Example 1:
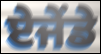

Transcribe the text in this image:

ਏਜੇਂਡੇ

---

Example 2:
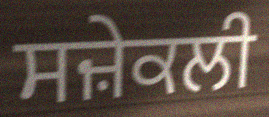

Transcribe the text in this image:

ਸਜ਼ੇਕਲੀ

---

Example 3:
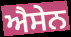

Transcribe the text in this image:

ਐਸੇਨ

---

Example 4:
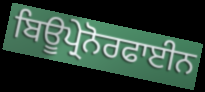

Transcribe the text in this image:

ਬਿਊਪ੍ਰੇਨੋਰਫਾਈਨ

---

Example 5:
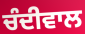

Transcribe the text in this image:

ਚੰਦੀਵਾਲ